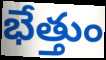
భేత్తుం